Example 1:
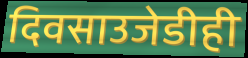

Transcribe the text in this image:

दिवसाउजेडीही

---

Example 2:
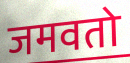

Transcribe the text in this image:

जमवतो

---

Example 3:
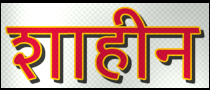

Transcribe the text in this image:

शाहीन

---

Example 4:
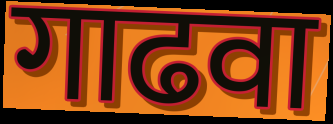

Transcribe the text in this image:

गाढवा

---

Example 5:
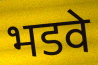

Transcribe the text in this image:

भडवे